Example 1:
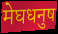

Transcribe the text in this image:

मेघधनुष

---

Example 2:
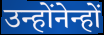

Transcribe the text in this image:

उन्होंनेन्हों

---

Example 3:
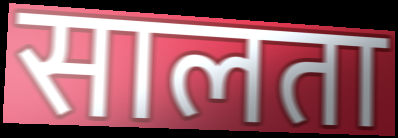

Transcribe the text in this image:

सालता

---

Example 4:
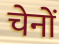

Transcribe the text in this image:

चेनों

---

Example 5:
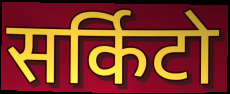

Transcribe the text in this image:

सर्किटो